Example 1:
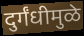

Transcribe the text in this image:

दुर्गंधीमुळे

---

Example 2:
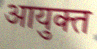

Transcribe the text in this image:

आयुक्त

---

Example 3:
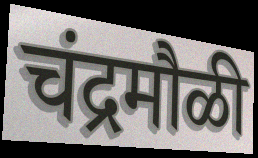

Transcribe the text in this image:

चंद्रमौळी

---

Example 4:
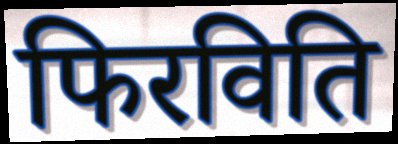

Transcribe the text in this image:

फिरविति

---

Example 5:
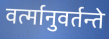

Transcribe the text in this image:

वर्त्मानुवर्तन्ते